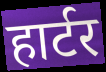
हार्टर